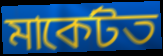
মাৰ্কেটত